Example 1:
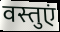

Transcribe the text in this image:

वस्तुएं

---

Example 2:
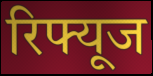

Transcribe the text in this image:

रिफ्यूज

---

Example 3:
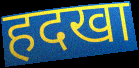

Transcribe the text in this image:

हदखा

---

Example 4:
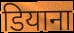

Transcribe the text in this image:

डियाना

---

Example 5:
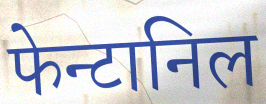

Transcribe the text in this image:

फेन्टानिल